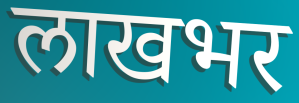
लाखभर